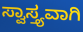
ಸ್ವಾಸ್ತ್ಯವಾಗಿ